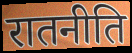
रातनीति